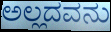
ಅಲ್ಲದವನು